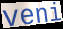
veni